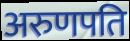
अरुणपति